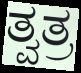
ತ್ವತ್ರ